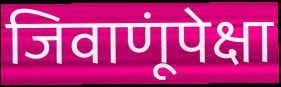
जिवाणूंपेक्षा